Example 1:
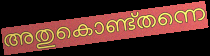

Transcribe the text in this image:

അതുകൊണ്ട്തന്നെ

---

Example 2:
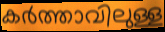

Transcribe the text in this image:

കർത്താവിലുള്ള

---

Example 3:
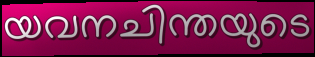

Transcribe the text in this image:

യവനചിന്തയുടെ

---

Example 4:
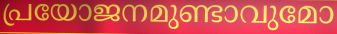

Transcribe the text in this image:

പ്രയോജനമുണ്ടാവുമോ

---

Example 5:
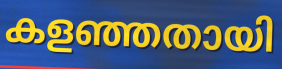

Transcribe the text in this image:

കളഞ്ഞതായി